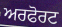
ਅਰਫੋਰਟ